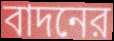
বাদনের